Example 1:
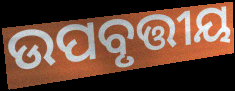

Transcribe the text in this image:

ଉପବୃତ୍ତୀୟ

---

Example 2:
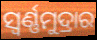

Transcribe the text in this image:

ସ୍ୱର୍ଣ୍ଣମୁଦ୍ରାର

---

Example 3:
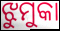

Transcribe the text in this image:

ଝୁମୁକା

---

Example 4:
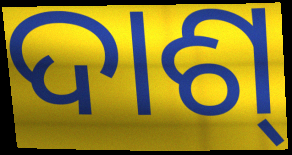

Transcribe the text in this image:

ଦାଶ୍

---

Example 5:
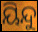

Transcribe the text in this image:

ୟିନ୍ଦୁ